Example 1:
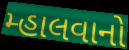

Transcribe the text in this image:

મ્હાલવાનો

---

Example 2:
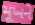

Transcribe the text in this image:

મૂખને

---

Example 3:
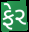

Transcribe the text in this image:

ફેર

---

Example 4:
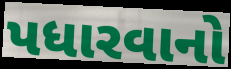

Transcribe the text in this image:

પધારવાનો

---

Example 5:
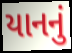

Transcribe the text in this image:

યાનનું